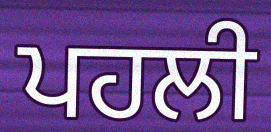
ਪਹਲੀ